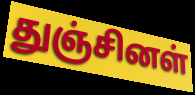
துஞ்சினள்